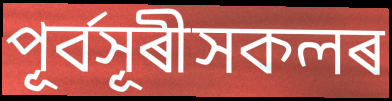
পূৰ্বসূৰীসকলৰ